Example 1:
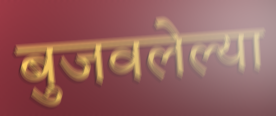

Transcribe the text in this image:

बुजवलेल्या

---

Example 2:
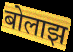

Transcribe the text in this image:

बोलाझ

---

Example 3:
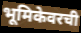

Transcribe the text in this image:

भूमिकेवरची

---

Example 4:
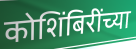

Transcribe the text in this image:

कोशिंबिरींच्या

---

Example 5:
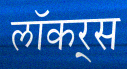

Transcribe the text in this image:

लॉकर्स